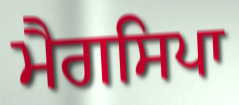
ਮੈਗਸਿਪਾ